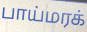
பாய்மரக்